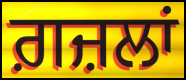
ਗ਼ਜ਼ਲਾਂ